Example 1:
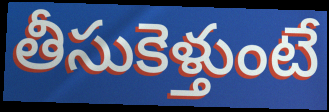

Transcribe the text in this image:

తీసుకెళ్తుంటే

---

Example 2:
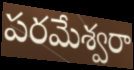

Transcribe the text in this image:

పరమేశ్వరా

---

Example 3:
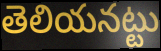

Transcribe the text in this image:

తెలియనట్టు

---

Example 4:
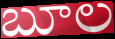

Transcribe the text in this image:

బూల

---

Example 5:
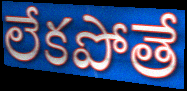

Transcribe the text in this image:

లేకపోతే